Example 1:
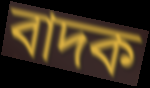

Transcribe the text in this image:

বাদক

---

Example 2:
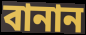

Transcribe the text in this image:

বানান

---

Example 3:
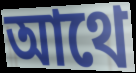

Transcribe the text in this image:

আথে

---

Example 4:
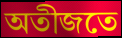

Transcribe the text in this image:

অতীজতে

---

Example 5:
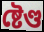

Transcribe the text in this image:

ষ্টেণ্ড